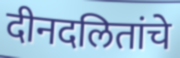
दीनदलितांचे